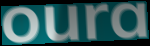
oura